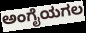
ಅಂಗೈಯಗಲ